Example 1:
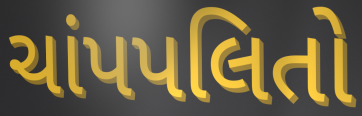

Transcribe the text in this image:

ચાંપપલિતો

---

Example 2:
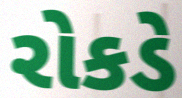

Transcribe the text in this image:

રોકડે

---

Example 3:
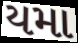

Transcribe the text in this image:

યમા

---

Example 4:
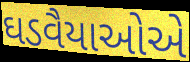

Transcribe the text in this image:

ઘડવૈયાઓએ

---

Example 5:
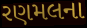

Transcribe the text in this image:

રણમલના